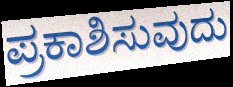
ಪ್ರಕಾಶಿಸುವುದು